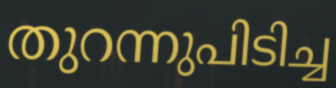
തുറന്നുപിടിച്ച